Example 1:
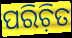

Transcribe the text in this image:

ପରିଚ଼ିତ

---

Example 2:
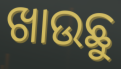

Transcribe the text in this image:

ଖାଉଛୁ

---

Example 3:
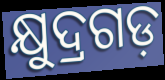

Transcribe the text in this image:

କ୍ଷୁଦ୍ରଗଡ଼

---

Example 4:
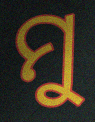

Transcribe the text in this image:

ମୁ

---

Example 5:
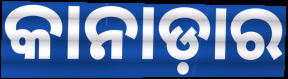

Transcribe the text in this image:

କାନାଡ଼ାର